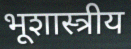
भूशास्त्रीय